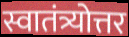
स्वातंत्र्योत्तर